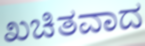
ಖಚಿತವಾದ